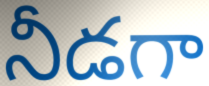
నీడగా